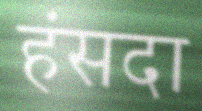
हंसदा